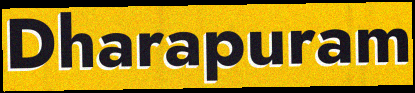
Dharapuram